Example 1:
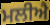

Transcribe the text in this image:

ਮਲੀਐ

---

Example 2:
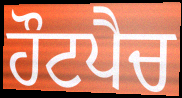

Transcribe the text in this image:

ਹੌਟਪੈਚ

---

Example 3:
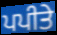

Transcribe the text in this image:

ਪਪੀਤੇ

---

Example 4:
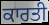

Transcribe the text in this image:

ਕਾਰਤੀ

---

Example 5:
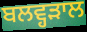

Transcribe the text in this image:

ਬਲਵ੍ਹੜਾਲ